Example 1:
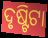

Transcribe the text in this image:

ଦୃଷ୍ଟିଟା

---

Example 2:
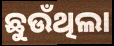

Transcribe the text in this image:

ଛୁଉଁଥିଲା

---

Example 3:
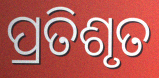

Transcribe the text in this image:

ପ୍ରତିଶୃତ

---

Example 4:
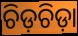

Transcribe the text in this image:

ଚିଡ଼ଚିଡ଼ା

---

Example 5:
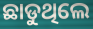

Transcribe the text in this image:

ଛାଡୁଥିଲେ